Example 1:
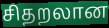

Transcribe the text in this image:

சிதறலான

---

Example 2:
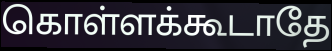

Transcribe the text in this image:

கொள்ளக்கூடாதே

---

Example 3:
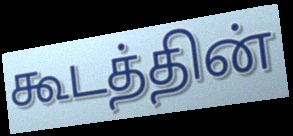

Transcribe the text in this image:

கூடத்தின்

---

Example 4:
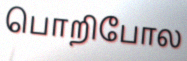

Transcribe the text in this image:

பொறிபோல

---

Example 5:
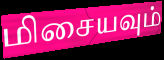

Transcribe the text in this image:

மிசையவும்